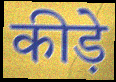
कीड़े